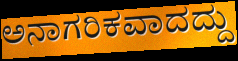
ಅನಾಗರಿಕವಾದದ್ದು